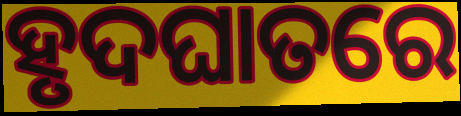
ହୃଦଘାତରେ